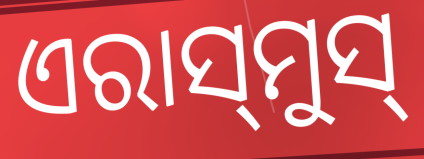
ଏରାସ୍‍ମୁସ୍